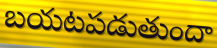
బయటపడుతుందా